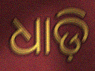
ଧାଡ଼ି